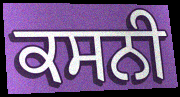
ਕਸਨੀ